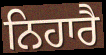
ਨਿਹਾਰੈ